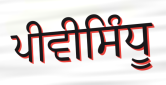
ਪੀਵੀਸਿੰਧੂ